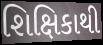
શિક્ષિકાથી